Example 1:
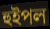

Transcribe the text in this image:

হুইপল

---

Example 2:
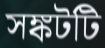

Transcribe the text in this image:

সঙ্কটটি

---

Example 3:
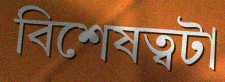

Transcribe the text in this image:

বিশেষত্বটা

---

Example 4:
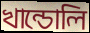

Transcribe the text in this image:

খান্ডোলি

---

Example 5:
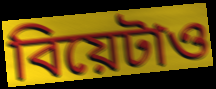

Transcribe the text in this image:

বিয়েটাও